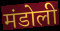
मंडोली